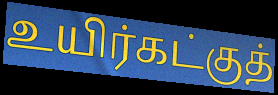
உயிர்கட்குத்